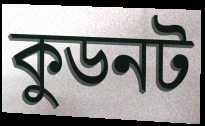
কুডনট